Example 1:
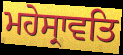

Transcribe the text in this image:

ਮਹੇਸ੍ਰਾਵਤਿ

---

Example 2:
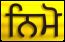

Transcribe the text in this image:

ਨਿਮੋ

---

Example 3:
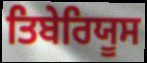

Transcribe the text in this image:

ਤਿਬੇਰਿਯੂਸ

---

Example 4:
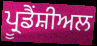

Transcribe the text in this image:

ਪ੍ਰੂਡੈਂਸ਼ੀਅਲ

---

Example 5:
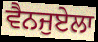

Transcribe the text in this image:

ਵੈਨਜੁਏਲਾ